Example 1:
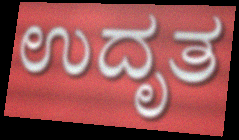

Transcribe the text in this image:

ಉದೃತ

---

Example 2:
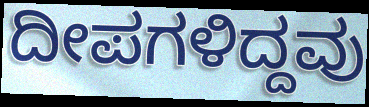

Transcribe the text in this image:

ದೀಪಗಳಿದ್ದವು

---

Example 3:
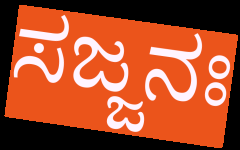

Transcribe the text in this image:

ಸಜ್ಜನಃ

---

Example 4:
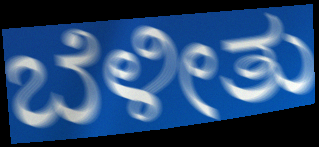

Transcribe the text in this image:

ಬೆಳೀತು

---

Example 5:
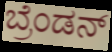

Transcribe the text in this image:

ಬ್ರೆಂಡನ್